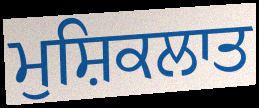
ਮੁਸ਼ਿਕਲਾਤ